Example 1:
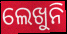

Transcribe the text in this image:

ଲେଖୁନି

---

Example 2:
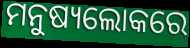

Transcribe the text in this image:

ମନୁଷ୍ୟଲୋକରେ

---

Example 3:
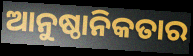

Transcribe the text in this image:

ଆନୁଷ୍ଠାନିକତାର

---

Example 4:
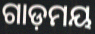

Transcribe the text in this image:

ଗାଡ଼ମୟ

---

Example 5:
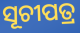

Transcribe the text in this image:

ସୂଚୀପତ୍ର